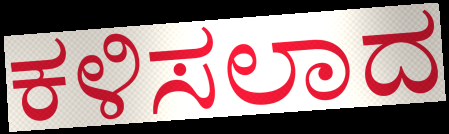
ಕಳಿಸಲಾದ